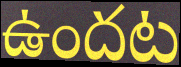
ఉందట